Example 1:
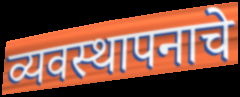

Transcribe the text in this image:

व्यवस्थापनाचे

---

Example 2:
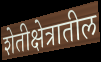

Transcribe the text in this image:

शेतीक्षेत्रातील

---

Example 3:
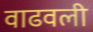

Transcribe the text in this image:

वाढवली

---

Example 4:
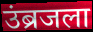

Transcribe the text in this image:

उंब्रजला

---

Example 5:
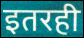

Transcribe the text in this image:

इतरही